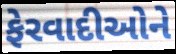
ફેરવાદીઓને